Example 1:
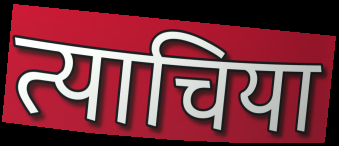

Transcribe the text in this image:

त्याचिया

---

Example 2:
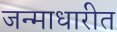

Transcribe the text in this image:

जन्माधारीत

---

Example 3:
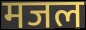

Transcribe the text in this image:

मजल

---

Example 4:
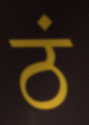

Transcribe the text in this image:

ठं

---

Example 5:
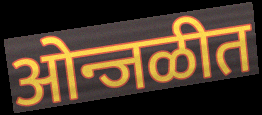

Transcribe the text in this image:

ओन्जळीत